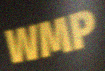
WMP